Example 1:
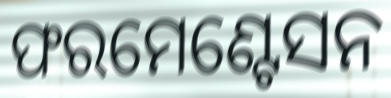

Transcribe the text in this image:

ଫରମେଣ୍ଟେସନ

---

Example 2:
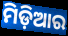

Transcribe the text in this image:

ମିଡ଼ିଆର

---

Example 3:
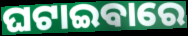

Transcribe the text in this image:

ଘଟାଇବାରେ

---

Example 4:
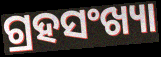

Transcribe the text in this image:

ଗ୍ରହସଂଖ୍ୟା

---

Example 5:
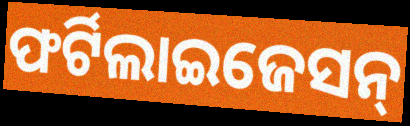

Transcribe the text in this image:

ଫର୍ଟିଲାଇଜେସନ୍